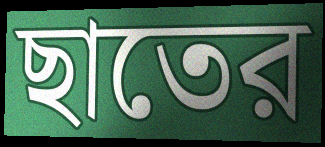
ছাতের